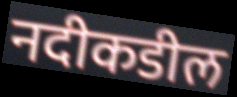
नदीकडील